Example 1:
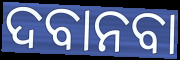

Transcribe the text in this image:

ଦବାନବା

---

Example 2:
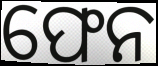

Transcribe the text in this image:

ଫେନ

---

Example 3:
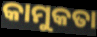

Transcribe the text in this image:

କାମୁକତା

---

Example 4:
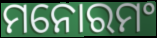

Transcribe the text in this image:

ମନୋରମଂ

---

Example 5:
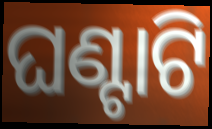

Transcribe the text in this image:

ଘଣ୍ଟାଟି